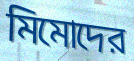
মিমোদের